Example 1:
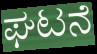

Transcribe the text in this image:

ಘಟನೆ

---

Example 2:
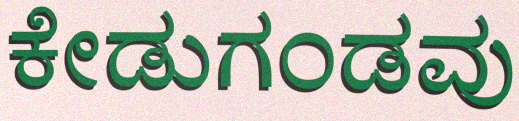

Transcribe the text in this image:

ಕೇಡುಗಂಡವು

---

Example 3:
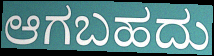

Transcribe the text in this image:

ಆಗಬಹದು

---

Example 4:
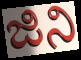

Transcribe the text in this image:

ಜಿನಿ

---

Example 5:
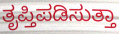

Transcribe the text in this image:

ತೃಪ್ತಿಪಡಿಸುತ್ತಾ